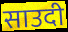
साउदी